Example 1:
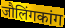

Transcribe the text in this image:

जौलिंगकांग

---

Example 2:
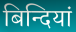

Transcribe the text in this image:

बिन्दियां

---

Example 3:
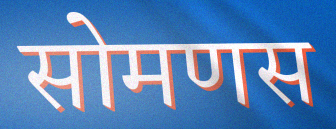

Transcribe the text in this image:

सोमणस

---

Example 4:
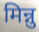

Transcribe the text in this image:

मिन्नु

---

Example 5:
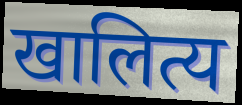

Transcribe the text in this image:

खालित्य